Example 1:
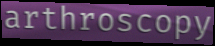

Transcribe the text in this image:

arthroscopy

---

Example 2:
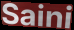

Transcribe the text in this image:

Saini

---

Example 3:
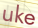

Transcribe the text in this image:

uke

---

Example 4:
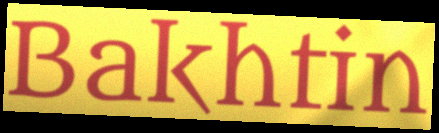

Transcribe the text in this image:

Bakhtin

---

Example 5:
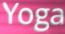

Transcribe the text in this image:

Yoga